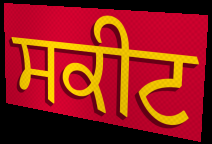
ਸਕੀਟ